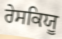
ਰੇਸਕਿਯੂ